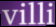
villi